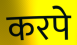
करपे